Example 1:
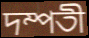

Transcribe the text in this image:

দম্পতী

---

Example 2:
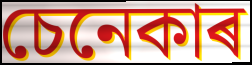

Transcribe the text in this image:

চেনেকাৰ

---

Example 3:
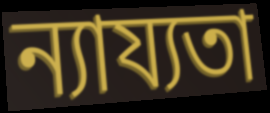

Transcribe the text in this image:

ন্যায্যতা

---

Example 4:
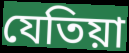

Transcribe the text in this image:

যেতিয়া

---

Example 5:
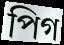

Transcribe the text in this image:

পিগ